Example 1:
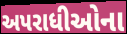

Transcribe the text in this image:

અપરાધીઓના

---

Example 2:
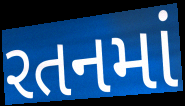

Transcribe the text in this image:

રતનમાં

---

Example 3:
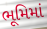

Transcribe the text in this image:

ભૂમિમાં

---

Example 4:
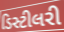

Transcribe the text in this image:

ડિસ્ટીલરી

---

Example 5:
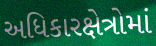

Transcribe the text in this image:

અધિકારક્ષેત્રોમાં